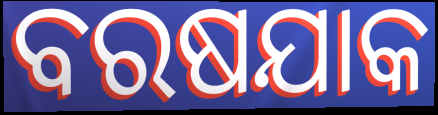
ବରଷଯାକ